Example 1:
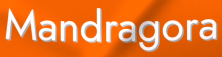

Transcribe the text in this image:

Mandragora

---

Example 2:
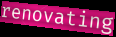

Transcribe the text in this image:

renovating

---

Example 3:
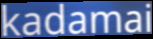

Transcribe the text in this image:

kadamai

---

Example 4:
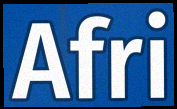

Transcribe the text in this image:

Afri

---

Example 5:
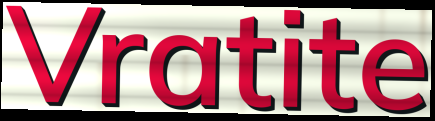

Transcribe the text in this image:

Vratite